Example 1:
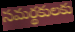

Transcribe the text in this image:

సమర్థకులకు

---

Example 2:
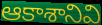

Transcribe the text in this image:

ఆకాశానివి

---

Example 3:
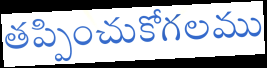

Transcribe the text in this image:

తప్పించుకోగలము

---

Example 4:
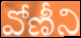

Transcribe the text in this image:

వోణీని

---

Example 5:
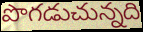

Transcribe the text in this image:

పొగడుచున్నది